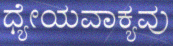
ಧ್ಯೇಯವಾಕ್ಯವು